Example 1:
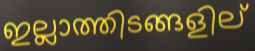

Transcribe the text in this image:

ഇല്ലാത്തിടങ്ങളില്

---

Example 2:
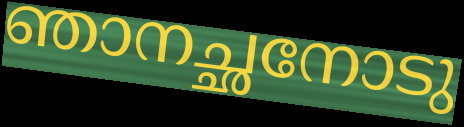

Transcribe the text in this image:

ഞാനച്ഛനോടു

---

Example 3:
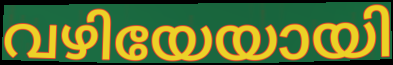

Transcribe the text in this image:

വഴിയേയായി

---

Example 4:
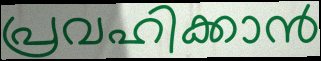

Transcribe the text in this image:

പ്രവഹിക്കാൻ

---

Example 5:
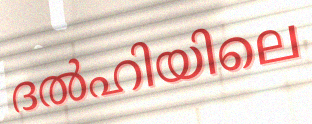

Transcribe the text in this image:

ദൽഹിയിലെ